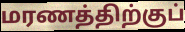
மரணத்திற்குப்